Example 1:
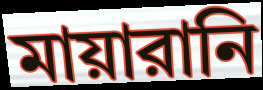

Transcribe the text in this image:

মায়ারানি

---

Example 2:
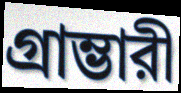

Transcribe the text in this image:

গ্রাম্ভারী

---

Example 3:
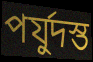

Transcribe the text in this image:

পর্যুদস্ত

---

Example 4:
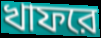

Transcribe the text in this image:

খাফরে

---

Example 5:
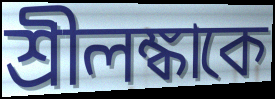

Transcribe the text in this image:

শ্রীলঙ্কাকে